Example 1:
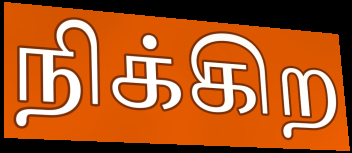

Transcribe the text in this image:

நிக்கிற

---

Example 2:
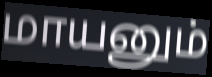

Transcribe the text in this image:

மாயனும்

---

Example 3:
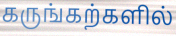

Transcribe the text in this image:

கருங்கற்களில்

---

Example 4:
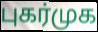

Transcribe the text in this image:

புகர்முக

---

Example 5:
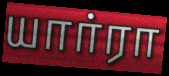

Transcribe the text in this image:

யார்ரா